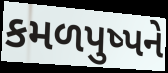
કમળપુષ્પને